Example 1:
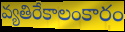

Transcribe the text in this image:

వ్యతిరేకాలంకారం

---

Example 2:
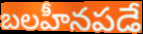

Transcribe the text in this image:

బలహీనపడే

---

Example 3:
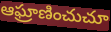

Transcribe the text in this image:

ఆఘ్రాణించుచూ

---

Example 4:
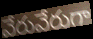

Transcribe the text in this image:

వేరువేరుగా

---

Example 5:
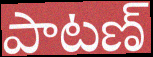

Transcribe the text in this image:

పాటణ్